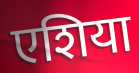
एशिया